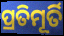
ପ୍ରତିମୂର୍ତି